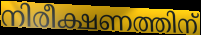
നിരീക്ഷണത്തിന്